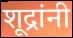
शूद्रांनी